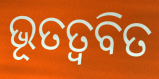
ଭୂତତ୍ଵବିତ